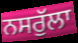
ਨਸਰੁੱਲਾ